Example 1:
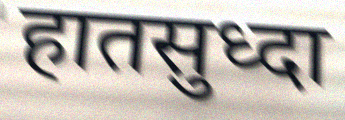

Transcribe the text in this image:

हातसुध्दा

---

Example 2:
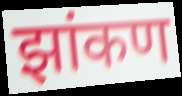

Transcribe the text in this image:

झांकण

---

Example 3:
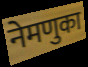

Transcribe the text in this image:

नेमणुका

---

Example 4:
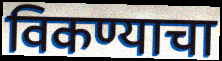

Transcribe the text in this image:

विकण्याचा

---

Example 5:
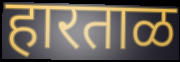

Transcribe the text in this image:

हारताळ